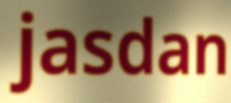
jasdan